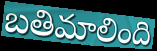
బతిమాలింది